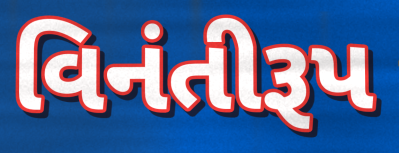
વિનંતીરૂપ